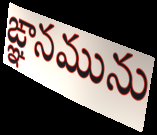
ఙ్ఞానమును